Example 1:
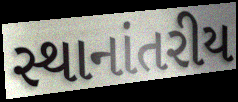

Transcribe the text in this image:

સ્થાનાંતરીય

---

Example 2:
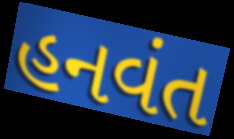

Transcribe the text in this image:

હનવંત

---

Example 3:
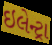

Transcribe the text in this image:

ઇલેન્ટ્રા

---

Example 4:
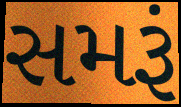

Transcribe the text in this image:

સમરૂં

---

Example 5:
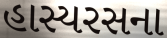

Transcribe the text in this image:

હાસ્યરસના